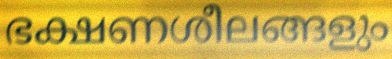
ഭക്ഷണശീലങ്ങളും